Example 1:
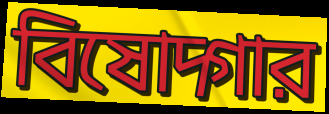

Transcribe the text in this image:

বিষোদ্গার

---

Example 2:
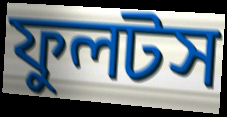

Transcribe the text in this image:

ফুলটস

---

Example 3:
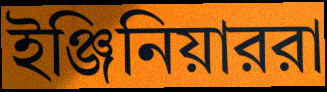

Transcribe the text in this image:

ইঞ্জিনিয়াররা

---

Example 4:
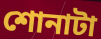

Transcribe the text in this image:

শোনাটা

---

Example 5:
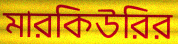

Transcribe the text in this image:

মারকিউরির